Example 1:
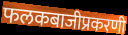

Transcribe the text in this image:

फलकबाजीप्रकरणी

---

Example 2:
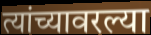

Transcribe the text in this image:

त्यांच्यावरल्या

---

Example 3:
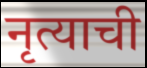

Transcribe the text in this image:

नृत्याची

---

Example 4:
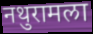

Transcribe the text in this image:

नथुरामला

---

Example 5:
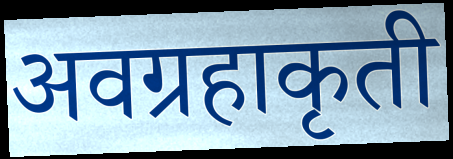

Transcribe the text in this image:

अवग्रहाकृती